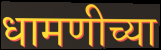
धामणीच्या